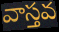
వాస్తవ